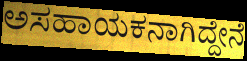
ಅಸಹಾಯಕನಾಗಿದ್ದೇನೆ